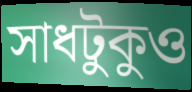
সাধটুকুও